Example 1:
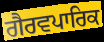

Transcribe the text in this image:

ਗੈਰਵਪਾਰਿਕ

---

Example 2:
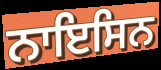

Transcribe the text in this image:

ਨਾਇਸਿਨ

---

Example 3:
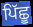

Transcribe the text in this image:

ਪਿੱਛੂ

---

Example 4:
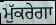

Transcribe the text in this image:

ਮੁੱਕਰੇਗਾ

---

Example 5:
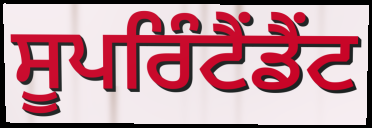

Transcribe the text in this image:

ਸੂਪਰਿੰਟੈਂਡੈਂਟ